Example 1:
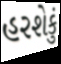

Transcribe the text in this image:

હરશેકું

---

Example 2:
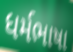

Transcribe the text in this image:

ધર્મભાષા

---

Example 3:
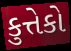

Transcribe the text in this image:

કુત્તેકો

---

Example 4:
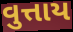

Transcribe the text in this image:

વુત્તાય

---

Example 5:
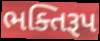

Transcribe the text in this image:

ભક્તિરૂપ